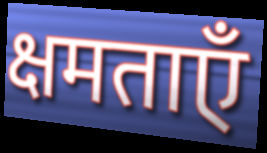
क्षमताएँ